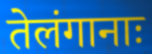
तेलंगानाः